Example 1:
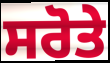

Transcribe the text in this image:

ਸਰੋਤੇ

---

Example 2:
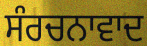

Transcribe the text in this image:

ਸੰਰਚਨਾਵਾਦ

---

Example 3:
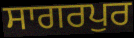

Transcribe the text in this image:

ਸਾਗਰਪੁਰ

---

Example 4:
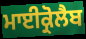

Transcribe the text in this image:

ਮਾਈਕ੍ਰੋਲੈਬ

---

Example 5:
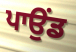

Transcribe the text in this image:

ਪਾਉਂਡ